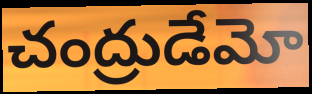
చంద్రుడేమో